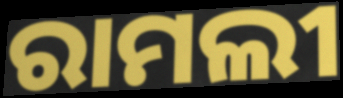
ରାମଲୀ